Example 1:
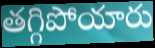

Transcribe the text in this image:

తగ్గిపోయారు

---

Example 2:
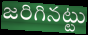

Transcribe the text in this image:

జరిగినట్టు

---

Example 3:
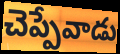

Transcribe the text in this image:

చెప్పేవాడు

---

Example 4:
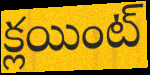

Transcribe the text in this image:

క్లయింట్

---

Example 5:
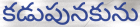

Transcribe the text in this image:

కడుపునకును